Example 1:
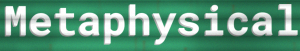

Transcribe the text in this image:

Metaphysical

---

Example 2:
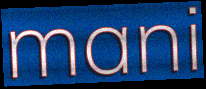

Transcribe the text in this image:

mani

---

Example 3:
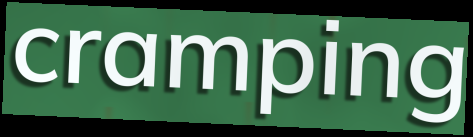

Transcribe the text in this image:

cramping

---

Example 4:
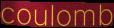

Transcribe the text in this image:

coulomb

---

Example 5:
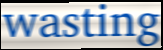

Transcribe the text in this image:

wasting